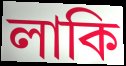
লাকি